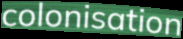
colonisation